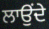
ਲਾਉਂਦੇ